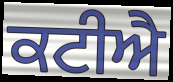
ਕਟੀਐ